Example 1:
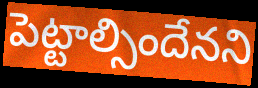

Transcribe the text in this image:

పెట్టాల్సిందేనని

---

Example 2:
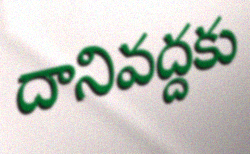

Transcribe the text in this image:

దానివద్దకు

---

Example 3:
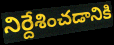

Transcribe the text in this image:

నిర్దేశించడానికి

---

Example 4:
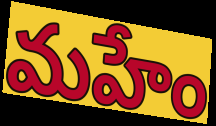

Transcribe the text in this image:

మహేం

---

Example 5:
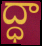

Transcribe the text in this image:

ద్ధా